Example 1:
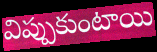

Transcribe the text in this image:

విప్పుకుంటాయి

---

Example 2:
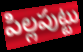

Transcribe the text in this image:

పిల్లపుట్టు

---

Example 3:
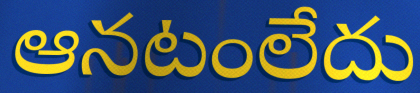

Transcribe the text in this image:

ఆనటంలేదు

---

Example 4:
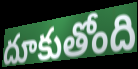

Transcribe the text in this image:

దూకుతోంది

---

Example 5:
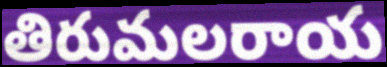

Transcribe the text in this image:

తిరుమలరాయ